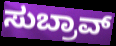
ಸುಬ್ರಾವ್